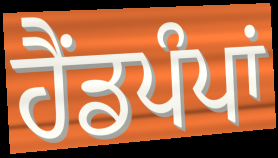
ਹੈਂਡਪੰਪਾਂ